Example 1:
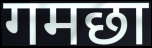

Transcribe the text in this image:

गमछा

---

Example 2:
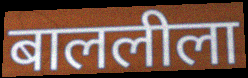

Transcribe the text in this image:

बाललीला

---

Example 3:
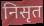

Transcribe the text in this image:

निसृत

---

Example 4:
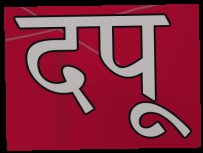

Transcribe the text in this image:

दपू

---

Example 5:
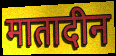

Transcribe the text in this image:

मातादीन